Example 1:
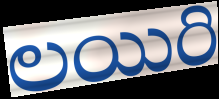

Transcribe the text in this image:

లయిరి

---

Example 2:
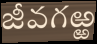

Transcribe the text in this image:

జీవగఱ్ఱ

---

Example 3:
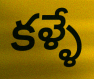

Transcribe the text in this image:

కళ్ళే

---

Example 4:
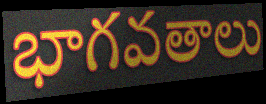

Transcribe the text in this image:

భాగవతాలు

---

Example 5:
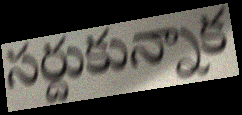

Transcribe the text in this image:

సర్దుకున్నాక